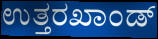
ಉತ್ತರಖಾಂಡ್